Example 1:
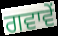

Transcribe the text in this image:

ਗਵਾਵੇਂ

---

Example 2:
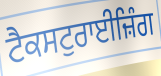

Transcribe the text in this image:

ਟੈਕਸਟੁਰਾਈਜ਼ਿੰਗ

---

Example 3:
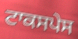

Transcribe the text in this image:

ਟਾਕਸਪੇਸ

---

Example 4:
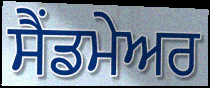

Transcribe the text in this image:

ਸੈਂਡਮੇਅਰ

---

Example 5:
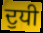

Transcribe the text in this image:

ਦੁਧੀ